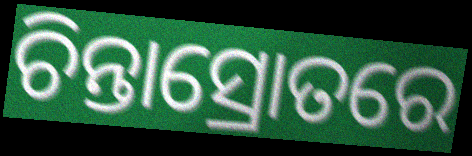
ଚିନ୍ତାସ୍ରୋତରେ